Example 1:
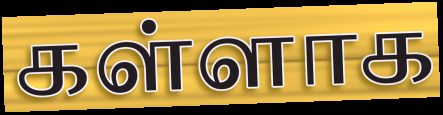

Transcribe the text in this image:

கள்ளாக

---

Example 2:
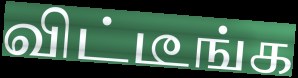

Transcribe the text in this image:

விட்டீங்க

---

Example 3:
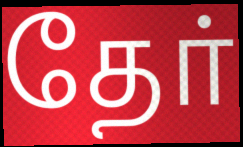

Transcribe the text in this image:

தேர்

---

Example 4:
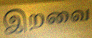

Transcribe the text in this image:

இறவை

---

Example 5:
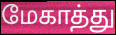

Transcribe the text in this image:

மேகாத்து